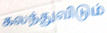
கலந்துவிடும்